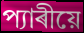
প্যাৰীয়ে